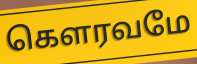
கௌரவமே